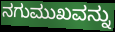
ನಗುಮುಖವನ್ನು